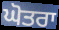
ਘੋਤਰਾ